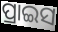
ପ୍ରାଇସ